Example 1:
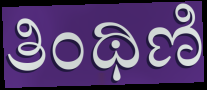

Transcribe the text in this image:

ತಿಂಥಿಣಿ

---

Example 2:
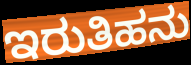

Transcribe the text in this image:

ಇರುತಿಹನು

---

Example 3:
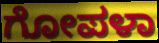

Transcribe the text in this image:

ಗೋಪಳಾ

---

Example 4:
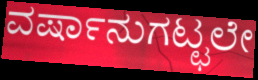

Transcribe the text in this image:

ವರ್ಷಾನುಗಟ್ಟಲೇ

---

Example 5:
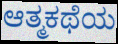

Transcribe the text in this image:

ಆತ್ಮಕಥೆಯ